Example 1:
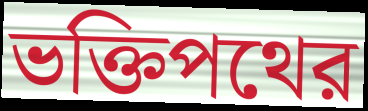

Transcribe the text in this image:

ভক্তিপথের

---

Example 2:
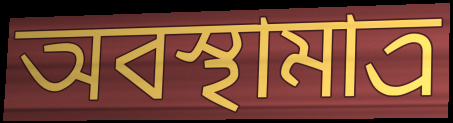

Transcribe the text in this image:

অবস্থামাত্র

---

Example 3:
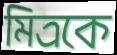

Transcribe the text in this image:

মিত্রকে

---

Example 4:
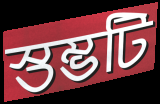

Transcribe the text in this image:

স্তম্ভটি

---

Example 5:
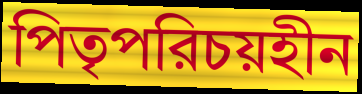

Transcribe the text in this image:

পিতৃপরিচয়হীন